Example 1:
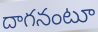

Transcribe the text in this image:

దాగనంటూ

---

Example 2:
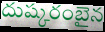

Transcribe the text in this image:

దుష్కరంబైన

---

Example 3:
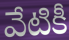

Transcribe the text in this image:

వేటికీ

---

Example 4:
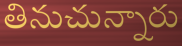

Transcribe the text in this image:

తినుచున్నారు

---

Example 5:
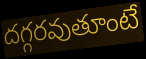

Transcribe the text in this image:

దగ్గరవుతూంటే